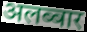
अलब्बार